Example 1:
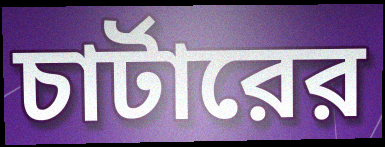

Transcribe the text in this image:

চার্টারের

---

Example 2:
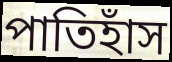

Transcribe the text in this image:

পাতিহাঁস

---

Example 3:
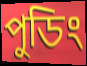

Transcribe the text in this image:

পুডিং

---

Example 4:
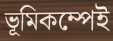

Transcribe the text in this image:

ভূমিকম্পেই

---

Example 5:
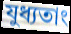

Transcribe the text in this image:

যুধ্যতাং